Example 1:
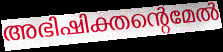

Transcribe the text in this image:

അഭിഷിക്തന്റെമേൽ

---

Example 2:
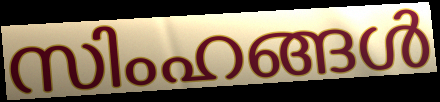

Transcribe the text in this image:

സിംഹങ്ങൾ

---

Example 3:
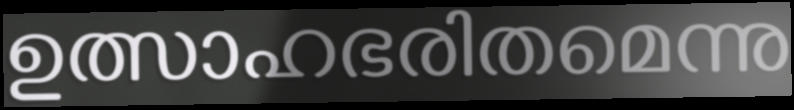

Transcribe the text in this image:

ഉത്സാഹഭരിതമെന്നു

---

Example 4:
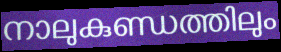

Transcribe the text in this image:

നാലുകുണ്ഡത്തിലും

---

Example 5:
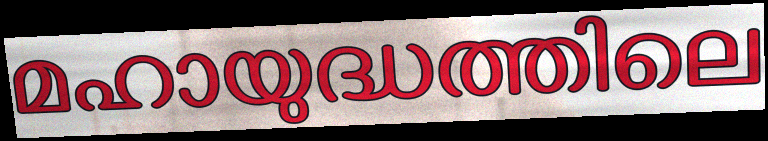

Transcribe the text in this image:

മഹായുദ്ധത്തിലെ